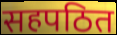
सहपठित